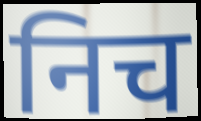
निच